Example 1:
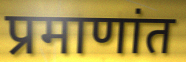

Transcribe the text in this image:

प्रमाणांत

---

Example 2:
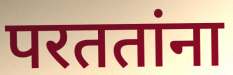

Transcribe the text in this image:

परततांना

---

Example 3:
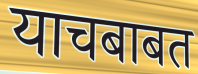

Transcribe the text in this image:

याचबाबत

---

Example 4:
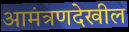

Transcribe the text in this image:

आमंत्रणदेखील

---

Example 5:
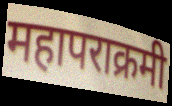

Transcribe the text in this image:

महापराक्रमी